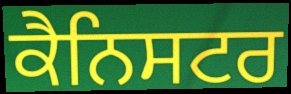
ਕੈਨਿਸਟਰ